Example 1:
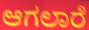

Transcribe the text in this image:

ಆಗಲಾರೆ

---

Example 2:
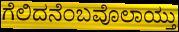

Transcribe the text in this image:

ಗೆಲಿದನೆಂಬವೊಲಾಯ್ತು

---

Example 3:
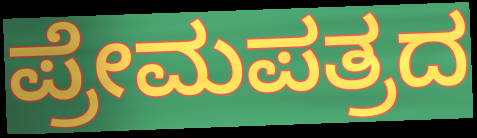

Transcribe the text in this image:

ಪ್ರೇಮಪತ್ರದ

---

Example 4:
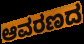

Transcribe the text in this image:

ಆವರಣದ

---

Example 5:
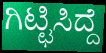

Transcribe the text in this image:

ಗಿಟ್ಟಿಸಿದ್ದೆ